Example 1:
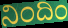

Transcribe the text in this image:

ನಿಂದಿಂ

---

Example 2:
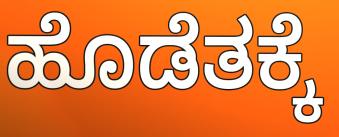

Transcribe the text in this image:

ಹೊಡೆತಕ್ಕೆ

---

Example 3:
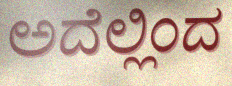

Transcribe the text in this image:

ಅದೆಲ್ಲಿಂದ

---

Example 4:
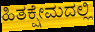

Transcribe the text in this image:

ಹಿತಕ್ಷೇಮದಲ್ಲಿ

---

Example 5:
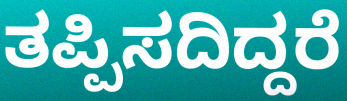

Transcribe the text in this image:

ತಪ್ಪಿಸದಿದ್ದರೆ